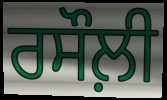
ਰਸੌਲ਼ੀ